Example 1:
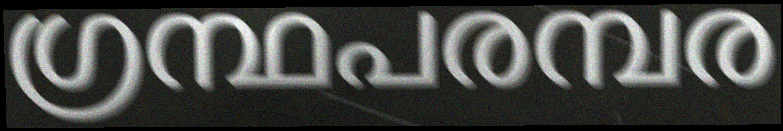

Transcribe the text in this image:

ഗ്രന്ഥപരമ്പര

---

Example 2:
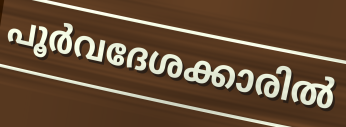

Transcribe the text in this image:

പൂർവദേശക്കാരിൽ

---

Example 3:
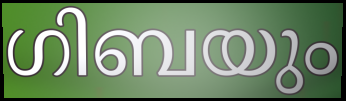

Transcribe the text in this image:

ഗിബയും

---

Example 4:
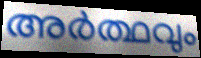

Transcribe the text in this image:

അർത്ഥവും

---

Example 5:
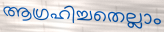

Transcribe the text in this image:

ആഗ്രഹിച്ചതെല്ലാം